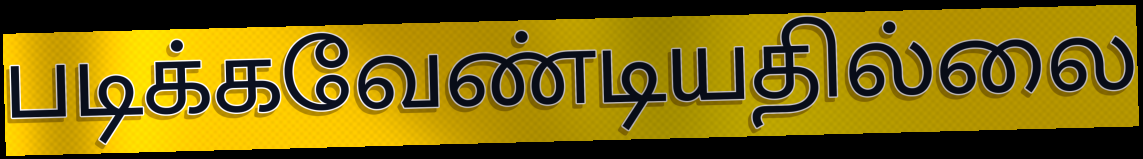
படிக்கவேண்டியதில்லை